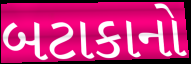
બટાકાનો